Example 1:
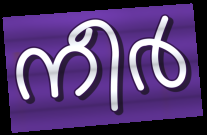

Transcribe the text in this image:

നീർ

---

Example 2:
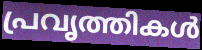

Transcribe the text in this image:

പ്രവൃത്തികൾ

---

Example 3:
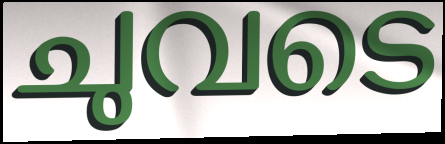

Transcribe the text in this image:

ചുവടെ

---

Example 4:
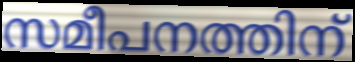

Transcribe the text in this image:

സമീപനത്തിന്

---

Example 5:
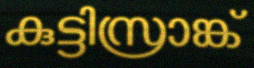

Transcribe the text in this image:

കുട്ടിസ്രാങ്ക്